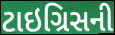
ટાઇગ્રિસની